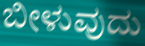
ಬೀಳುವುದು